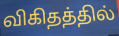
விகிதத்தில்